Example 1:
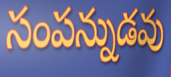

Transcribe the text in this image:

సంపన్నుడవు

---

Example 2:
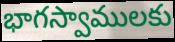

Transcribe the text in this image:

భాగస్వాములకు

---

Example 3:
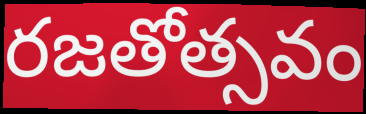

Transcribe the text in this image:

రజతోత్సవం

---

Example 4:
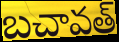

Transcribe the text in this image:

బచావత్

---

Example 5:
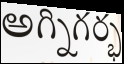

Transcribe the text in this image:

అగ్నిగర్భ